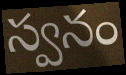
స్వనం